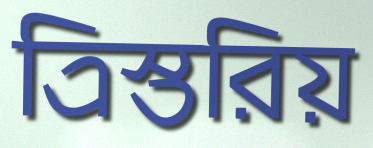
ত্রিস্তরিয়